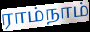
ராம்நாம்